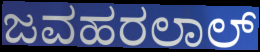
ಜವಹರಲಾಲ್